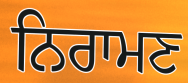
ਨਿਰਾਮਣ